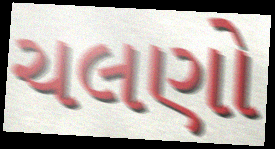
ચલણો